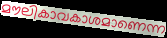
മൗലികാവകാശമാണെന്ന